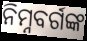
ନିମ୍ନବର୍ଗଙ୍କ